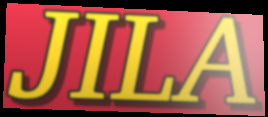
JILA